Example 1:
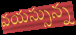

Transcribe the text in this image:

వయస్సున్న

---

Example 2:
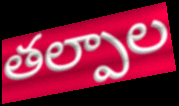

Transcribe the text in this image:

తల్పాల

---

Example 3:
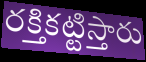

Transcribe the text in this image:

రక్తికట్టిస్తారు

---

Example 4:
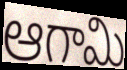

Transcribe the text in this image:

ఆగామి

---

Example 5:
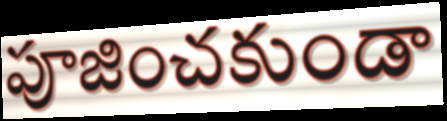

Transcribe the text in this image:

పూజించకుండా